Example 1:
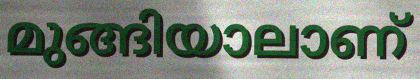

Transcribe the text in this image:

മുങ്ങിയാലാണ്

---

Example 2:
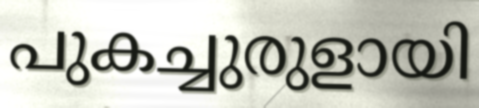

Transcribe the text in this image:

പുകച്ചുരുളായി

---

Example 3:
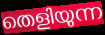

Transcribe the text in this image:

തെളിയുന്ന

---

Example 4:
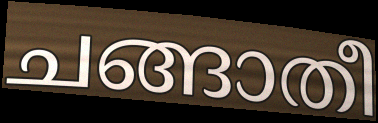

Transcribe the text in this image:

ചങ്ങാതീ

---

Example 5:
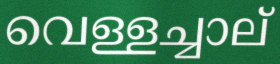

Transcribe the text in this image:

വെള്ളച്ചാല്